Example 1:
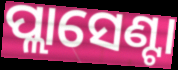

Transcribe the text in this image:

ପ୍ଲାସେଣ୍ଟା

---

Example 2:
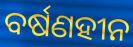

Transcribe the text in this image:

ବର୍ଷଣହୀନ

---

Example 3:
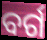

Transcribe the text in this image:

ବର୍ଗ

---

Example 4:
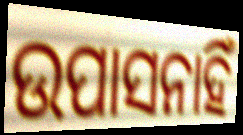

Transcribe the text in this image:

ଉପାସନାହିଁ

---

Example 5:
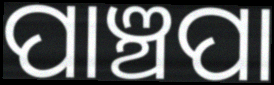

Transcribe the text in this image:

ପାଞ୍ଚପା